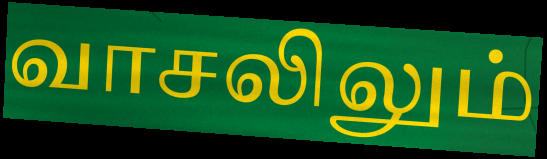
வாசலிலும்